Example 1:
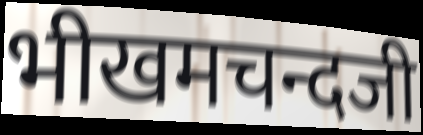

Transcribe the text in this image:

भीखमचन्दजी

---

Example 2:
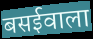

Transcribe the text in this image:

बसईवाला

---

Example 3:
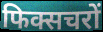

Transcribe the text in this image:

फिक्सचरों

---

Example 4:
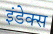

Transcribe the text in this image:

इंडेक्स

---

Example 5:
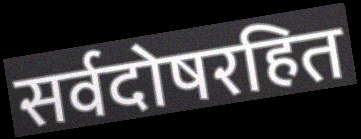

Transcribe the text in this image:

सर्वदोषरहित